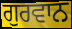
ਗੁਰਵਾਨ